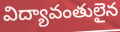
విద్యావంతులైన